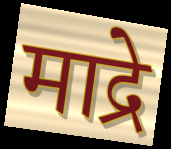
माद्रे